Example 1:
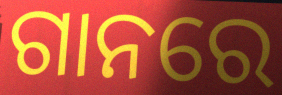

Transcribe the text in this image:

ଗାନରେ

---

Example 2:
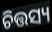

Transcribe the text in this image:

ଚିତ୍ତସ୍ୟ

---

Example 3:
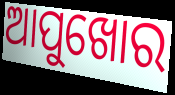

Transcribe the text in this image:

ଆପୁଖୋର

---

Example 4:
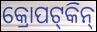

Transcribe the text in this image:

କ୍ରୋପଟ୍‍କିନ୍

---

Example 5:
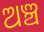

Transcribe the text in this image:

ଅଞ୍ଚ